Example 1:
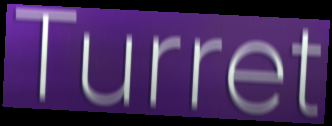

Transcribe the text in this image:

Turret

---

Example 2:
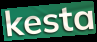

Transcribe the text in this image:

kesta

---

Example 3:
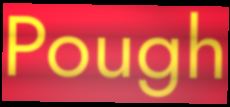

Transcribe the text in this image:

Pough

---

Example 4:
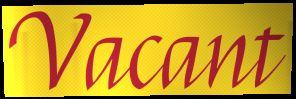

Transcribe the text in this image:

Vacant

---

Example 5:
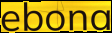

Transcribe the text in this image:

ebona